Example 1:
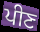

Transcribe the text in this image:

ਪੀਣ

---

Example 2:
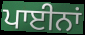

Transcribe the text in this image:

ਪਾਈਨਾਂ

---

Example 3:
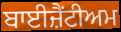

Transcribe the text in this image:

ਬਾਈਜ਼ੈਂਟੀਅਮ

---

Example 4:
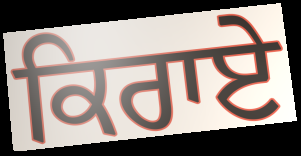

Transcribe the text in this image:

ਕਿਰਾਏ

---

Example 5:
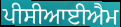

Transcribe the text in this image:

ਪੀਸੀਆਈਐਮ